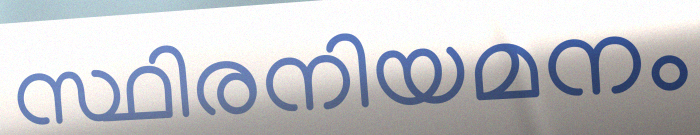
സ്ഥിരനിയമനം